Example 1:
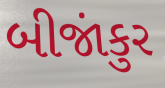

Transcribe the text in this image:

બીજાંકુર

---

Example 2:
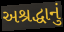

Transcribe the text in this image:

અશ્રદ્ધાનું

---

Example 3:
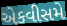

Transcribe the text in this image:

એકવીસમે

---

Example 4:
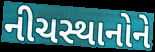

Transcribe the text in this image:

નીચસ્થાનોને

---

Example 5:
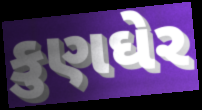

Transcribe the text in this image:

કુણઘેર